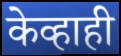
केव्हाही